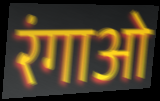
रंगाओ